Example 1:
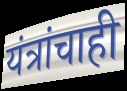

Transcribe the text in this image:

यंत्रांचाही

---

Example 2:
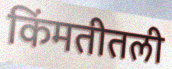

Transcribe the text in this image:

किंमतीतली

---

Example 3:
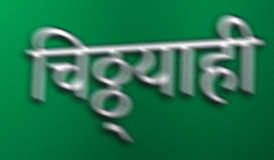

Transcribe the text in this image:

चिठ्ठ्याही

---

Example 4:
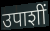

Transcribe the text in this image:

उपाशीं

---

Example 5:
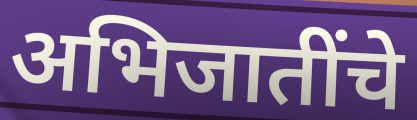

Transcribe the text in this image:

अभिजातींचे